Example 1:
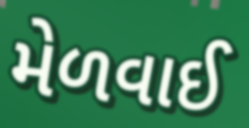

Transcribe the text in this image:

મેળવાઈ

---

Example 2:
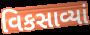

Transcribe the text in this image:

વિકસાવ્યાં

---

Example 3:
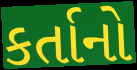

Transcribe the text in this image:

કર્તાનો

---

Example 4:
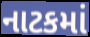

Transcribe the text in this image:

નાટકમાં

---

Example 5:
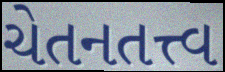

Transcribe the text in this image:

ચેતનતત્ત્વ